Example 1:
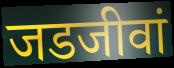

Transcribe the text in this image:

जडजीवां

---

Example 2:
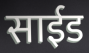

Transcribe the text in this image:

साईड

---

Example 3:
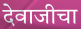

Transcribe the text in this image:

देवाजीचा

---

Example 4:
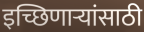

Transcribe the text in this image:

इच्छिणाऱ्यांसाठी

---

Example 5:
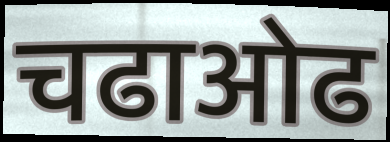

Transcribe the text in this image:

चढाओढ